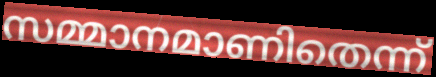
സമ്മാനമാണിതെന്ന്